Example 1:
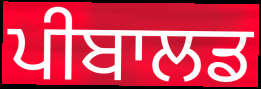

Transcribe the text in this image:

ਪੀਬਾਲਡ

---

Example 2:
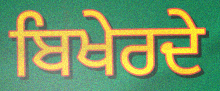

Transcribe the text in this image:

ਬਿਖੇਰਦੇ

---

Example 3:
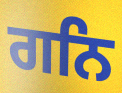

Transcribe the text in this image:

ਗਨਿ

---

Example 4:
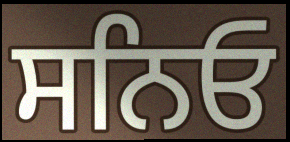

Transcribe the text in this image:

ਸਨਿਓ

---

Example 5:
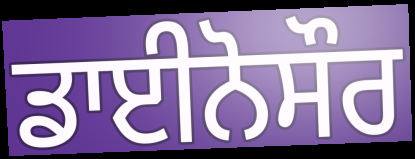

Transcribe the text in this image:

ਡਾਈਨੋਸੌਰ